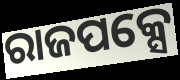
ରାଜପକ୍ସେ